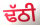
ਢੱਠੀ